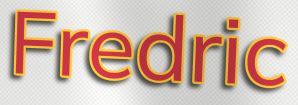
Fredric